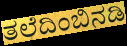
ತಲೆದಿಂಬಿನಡಿ